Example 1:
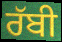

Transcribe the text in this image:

ਰੱਬੀ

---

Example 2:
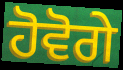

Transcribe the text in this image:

ਹੋਵੋਗੇ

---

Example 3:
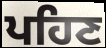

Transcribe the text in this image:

ਪਹਿਣ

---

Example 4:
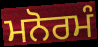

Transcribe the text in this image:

ਮਨੋਰਮੰ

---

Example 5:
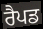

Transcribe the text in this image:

ਰੈਪਡ